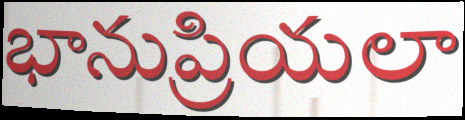
భానుప్రియలా